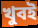
খুবই